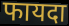
फायदा